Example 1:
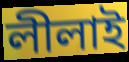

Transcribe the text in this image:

লীলাই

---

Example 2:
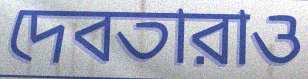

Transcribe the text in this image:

দেবতারাও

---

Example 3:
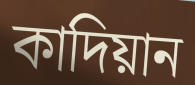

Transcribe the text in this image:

কাদিয়ান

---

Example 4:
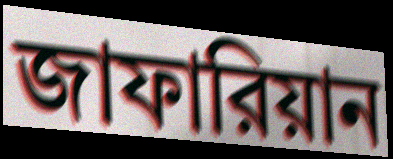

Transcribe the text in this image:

জাফারিয়ান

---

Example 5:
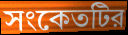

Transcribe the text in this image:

সংকেতটির